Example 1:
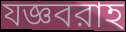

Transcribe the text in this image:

যজ্ঞবরাহ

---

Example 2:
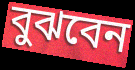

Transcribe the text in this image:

বুঝবেন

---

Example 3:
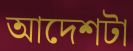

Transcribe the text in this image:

আদেশটা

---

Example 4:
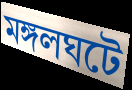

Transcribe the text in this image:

মঙ্গলঘটে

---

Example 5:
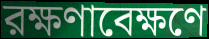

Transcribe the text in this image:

রক্ষণাবেক্ষণে